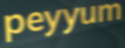
peyyum